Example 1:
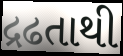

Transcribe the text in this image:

દ્રઢતાથી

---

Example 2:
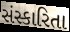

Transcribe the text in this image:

સંસ્કારિતા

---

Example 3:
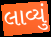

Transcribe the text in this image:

લાવ્યું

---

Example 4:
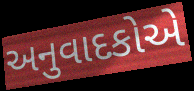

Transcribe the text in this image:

અનુવાદકોએ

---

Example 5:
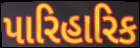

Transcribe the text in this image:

પારિહારિક